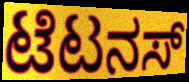
ಟೆಟನಸ್